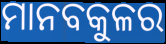
ମାନବକୁଳର